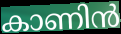
കാണിൻ